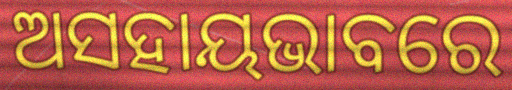
ଅସହାୟଭାବରେ